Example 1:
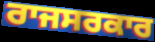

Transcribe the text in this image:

ਰਾਜਸਰਕਾਰ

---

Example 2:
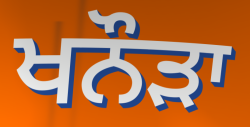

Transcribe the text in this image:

ਖਨੌੜਾ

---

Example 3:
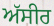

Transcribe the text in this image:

ਅੱਸੀਰ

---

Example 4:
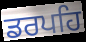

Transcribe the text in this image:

ਡਰਪਹਿ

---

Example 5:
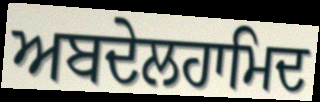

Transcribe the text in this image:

ਅਬਦੇਲਹਾਮਿਦ